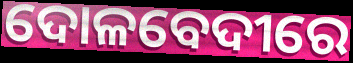
ଦୋଳବେଦୀରେ